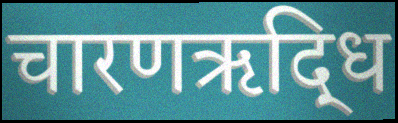
चारणऋद्धि